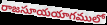
రాజసూయయాగములో